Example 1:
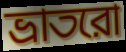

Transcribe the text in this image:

ভ্রাতরো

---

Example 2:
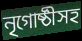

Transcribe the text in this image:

নৃগোষ্ঠীসহ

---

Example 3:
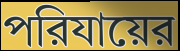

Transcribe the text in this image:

পরিযায়ের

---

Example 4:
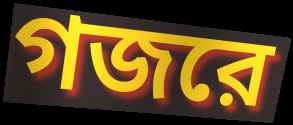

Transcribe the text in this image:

গজরে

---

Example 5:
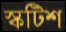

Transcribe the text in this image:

স্কটিশ